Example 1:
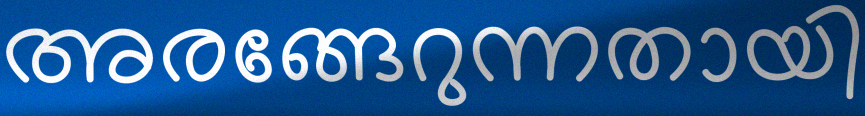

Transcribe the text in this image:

അരങ്ങേറുന്നതായി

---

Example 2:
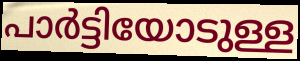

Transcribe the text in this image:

പാർട്ടിയോടുള്ള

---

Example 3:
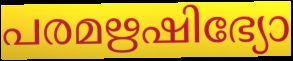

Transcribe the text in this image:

പരമഋഷിഭ്യോ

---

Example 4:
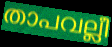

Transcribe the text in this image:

താപവല്ലീ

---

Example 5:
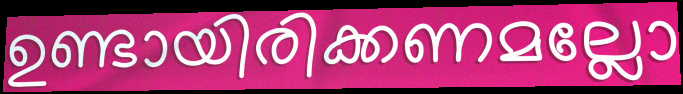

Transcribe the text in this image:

ഉണ്ടായിരിക്കണമല്ലോ